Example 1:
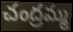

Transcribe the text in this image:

చంద్రమ్మ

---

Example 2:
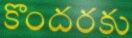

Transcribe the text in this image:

కొందరకు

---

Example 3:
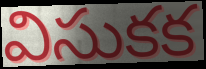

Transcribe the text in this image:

విసుకక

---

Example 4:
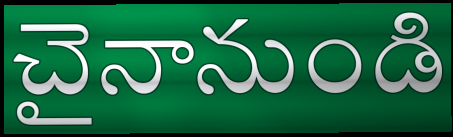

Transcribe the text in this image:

చైనానుండి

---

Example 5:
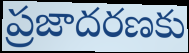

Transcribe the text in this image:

ప్రజాదరణకు